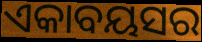
ଏକାବୟସର